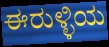
ಈರುಳ್ಳಿಯ